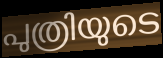
പുത്രിയുടെ